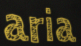
aria